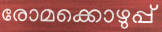
രോമക്കൊഴുപ്പ്